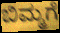
ಬಿಮ್ಮಗೆ